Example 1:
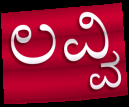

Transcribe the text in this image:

ಲವ್ವಿ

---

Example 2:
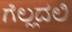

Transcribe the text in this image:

ಗೆಲ್ಲದಲಿ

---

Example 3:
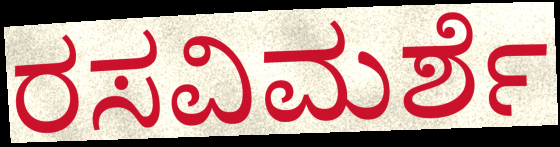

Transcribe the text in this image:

ರಸವಿಮರ್ಶೆ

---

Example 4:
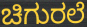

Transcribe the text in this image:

ಚಿಗುರಲೆ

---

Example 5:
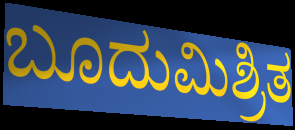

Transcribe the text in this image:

ಬೂದುಮಿಶ್ರಿತ